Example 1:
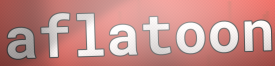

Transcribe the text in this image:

aflatoon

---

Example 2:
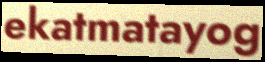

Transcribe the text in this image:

ekatmatayog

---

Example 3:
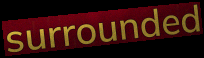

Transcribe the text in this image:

surrounded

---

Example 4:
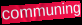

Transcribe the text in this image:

communing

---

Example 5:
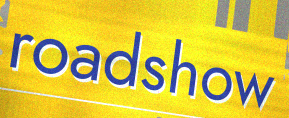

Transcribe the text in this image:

roadshow